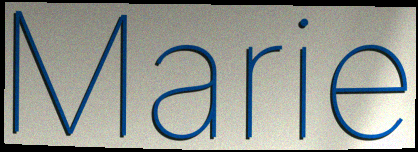
Marie